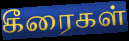
கீரைகள்